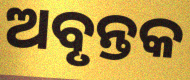
ଅବୃନ୍ତକ